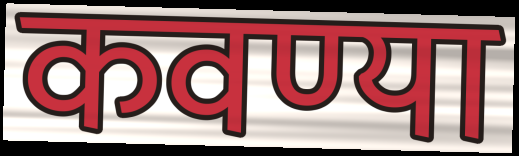
कवण्या